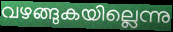
വഴങ്ങുകയില്ലെന്നു